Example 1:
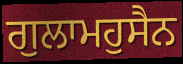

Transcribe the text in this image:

ਗੁਲਾਮਹੁਸੈਨ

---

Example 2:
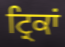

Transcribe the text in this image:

ਟ੍ਰਿਕਾਂ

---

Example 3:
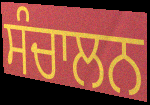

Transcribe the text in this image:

ਸੰਚਾਲਨ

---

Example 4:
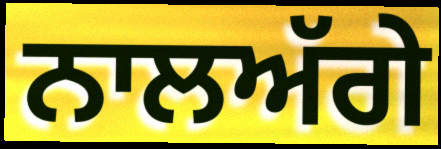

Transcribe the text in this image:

ਨਾਲਅੱਗੇ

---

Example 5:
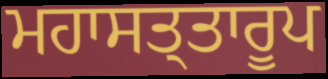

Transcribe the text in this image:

ਮਹਾਸਤ੍ਤਾਰੂਪ